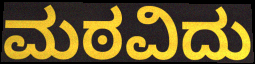
ಮಠವಿದು